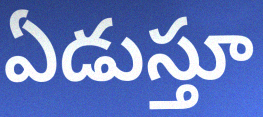
ఏడుస్తూ